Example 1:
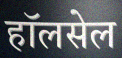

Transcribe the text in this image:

हॉलसेल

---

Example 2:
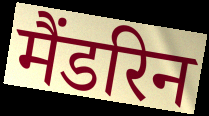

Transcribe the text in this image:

मैंडरिन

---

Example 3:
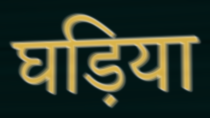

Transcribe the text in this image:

घड़िया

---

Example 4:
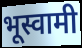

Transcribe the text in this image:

भूस्वामी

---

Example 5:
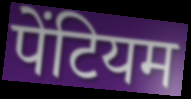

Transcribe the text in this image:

पेंटियम